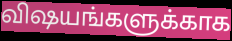
விஷயங்களுக்காக